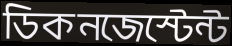
ডিকনজেস্টেন্ট